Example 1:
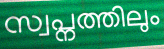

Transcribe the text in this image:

സ്വപ്നത്തിലും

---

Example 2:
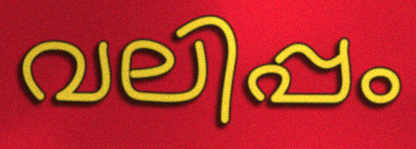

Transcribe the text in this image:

വലിപ്പം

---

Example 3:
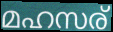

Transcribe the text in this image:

മഹസര്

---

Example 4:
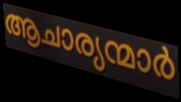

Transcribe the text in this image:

ആചാര്യന്മാർ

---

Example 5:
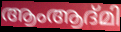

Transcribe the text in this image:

ആംആദ്മി